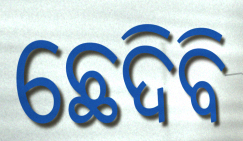
ଛେଦିବି